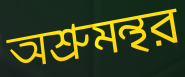
অশ্রুমন্থর